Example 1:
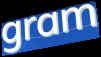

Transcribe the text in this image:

gram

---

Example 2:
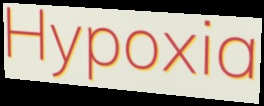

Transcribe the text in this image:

Hypoxia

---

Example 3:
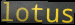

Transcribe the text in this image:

lotus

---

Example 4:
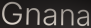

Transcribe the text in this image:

Gnana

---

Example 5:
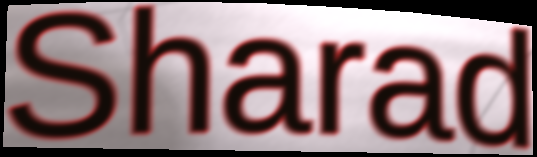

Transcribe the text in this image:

Sharad